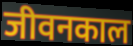
जीवनकाल